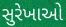
સુરેખાઓ